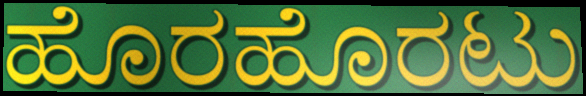
ಹೊರಹೊರಟು